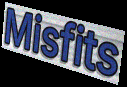
Misfits